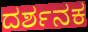
ದರ್ಶನಕ